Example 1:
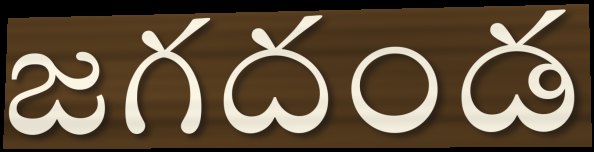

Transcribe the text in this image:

జగదండ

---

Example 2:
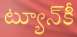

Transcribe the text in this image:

ట్యూన్‌కీ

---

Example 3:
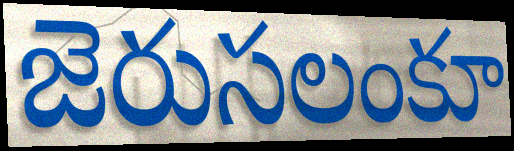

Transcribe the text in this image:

జెరుసలంకూ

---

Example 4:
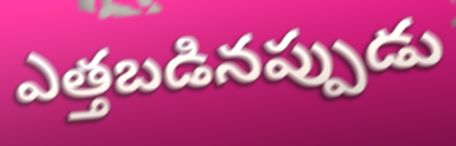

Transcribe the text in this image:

ఎత్తబడినప్పుడు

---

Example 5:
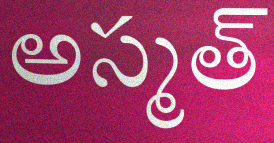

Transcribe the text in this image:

అస్మత్